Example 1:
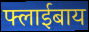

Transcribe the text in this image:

फ्लाईबाय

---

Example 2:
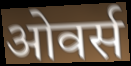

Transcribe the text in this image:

ओवर्स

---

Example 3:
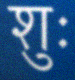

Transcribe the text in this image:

शुः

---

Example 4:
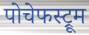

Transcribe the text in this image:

पोचेफस्ट्रूम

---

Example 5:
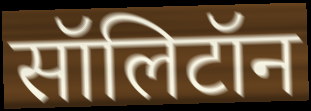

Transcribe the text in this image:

सॉलिटॉन